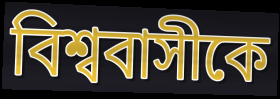
বিশ্ববাসীকে